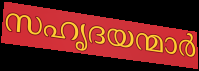
സഹൃദയന്മാർ